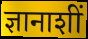
ज्ञानाशीं